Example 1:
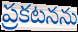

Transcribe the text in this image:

ప్రకటనను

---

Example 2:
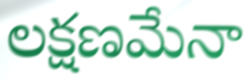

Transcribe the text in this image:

లక్షణమేనా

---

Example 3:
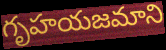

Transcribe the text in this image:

గృహయజమాని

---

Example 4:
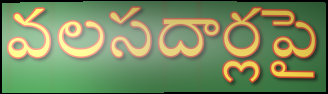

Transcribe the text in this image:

వలసదార్లపై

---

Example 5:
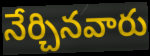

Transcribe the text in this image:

నేర్చినవారు